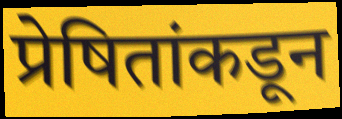
प्रेषितांकडून